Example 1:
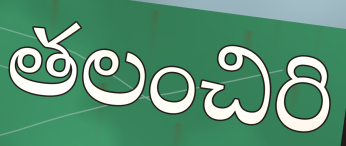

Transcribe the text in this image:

తలంచిరి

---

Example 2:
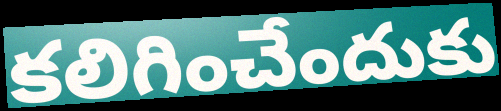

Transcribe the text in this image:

కలిగించేందుకు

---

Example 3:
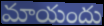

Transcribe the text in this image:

మాయందు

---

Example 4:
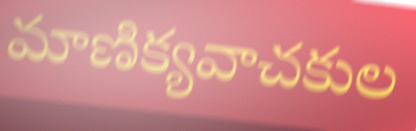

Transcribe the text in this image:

మాణిక్యవాచకుల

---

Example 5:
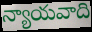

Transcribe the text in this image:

న్యాయవాది